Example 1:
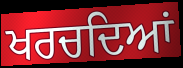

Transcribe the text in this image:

ਖਰਚਦਿਆਂ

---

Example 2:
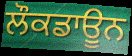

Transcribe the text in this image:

ਲੌਕਡਾਊਨ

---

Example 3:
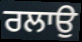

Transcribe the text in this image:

ਰਲਾਉ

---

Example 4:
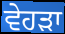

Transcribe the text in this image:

ਵੇਹੜਾ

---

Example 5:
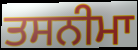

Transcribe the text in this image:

ਤਸਨੀਮਾ